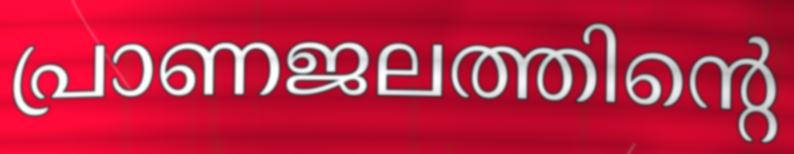
പ്രാണജലത്തിന്റെ